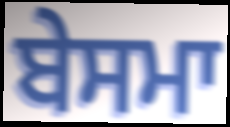
ਬੇਸਮਾ